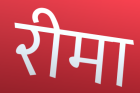
रीमा